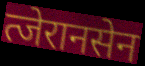
त्जेरानसेन